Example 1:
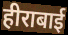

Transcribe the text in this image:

हीराबाई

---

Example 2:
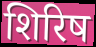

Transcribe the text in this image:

शिरिष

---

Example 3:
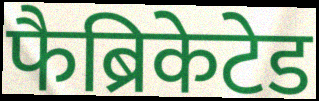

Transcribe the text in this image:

फैब्रिकेटेड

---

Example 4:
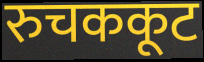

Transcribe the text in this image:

रुचककूट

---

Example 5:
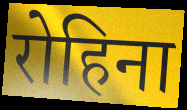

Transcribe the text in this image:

रोहिना